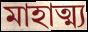
মাহাত্ম্য